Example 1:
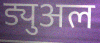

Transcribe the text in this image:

ड्युअल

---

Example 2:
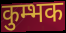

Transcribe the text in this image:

कुम्भक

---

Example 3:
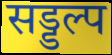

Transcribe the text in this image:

सड्डल्प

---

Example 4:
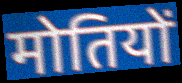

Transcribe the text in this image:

मोतियों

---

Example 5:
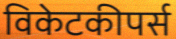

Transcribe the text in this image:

विकेटकीपर्स